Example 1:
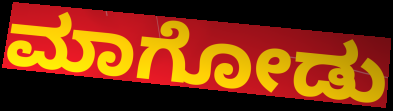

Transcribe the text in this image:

ಮಾಗೋಡು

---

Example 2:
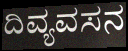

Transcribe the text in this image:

ದಿವ್ಯವಸನ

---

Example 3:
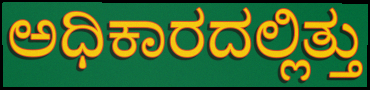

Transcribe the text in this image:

ಅಧಿಕಾರದಲ್ಲಿತ್ತು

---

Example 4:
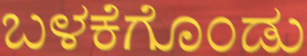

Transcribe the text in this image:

ಬಳಕೆಗೊಂಡು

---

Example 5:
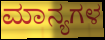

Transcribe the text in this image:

ಮಾನ್ಯಗಳ